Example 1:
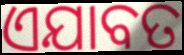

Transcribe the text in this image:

ଏଯାବତ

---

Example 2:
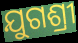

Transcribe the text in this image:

ଯୁଗଶ୍ରୀ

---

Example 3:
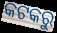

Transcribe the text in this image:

କଟକରୁ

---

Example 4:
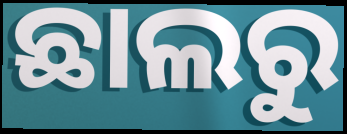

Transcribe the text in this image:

ଛାଲରୁ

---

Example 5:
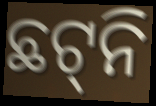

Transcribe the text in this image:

ଛଟ୍‌ନି